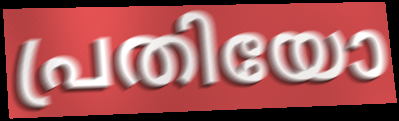
പ്രതിയോ